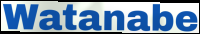
Watanabe